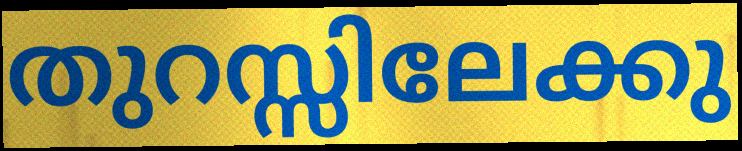
തുറസ്സിലേക്കു